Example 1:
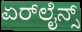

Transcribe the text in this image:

ಏರ್‌ಲೈನ್ಸ್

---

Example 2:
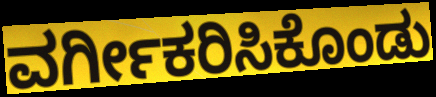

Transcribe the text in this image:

ವರ್ಗೀಕರಿಸಿಕೊಂಡು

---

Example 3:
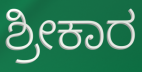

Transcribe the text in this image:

ಶ್ರೀಕಾರ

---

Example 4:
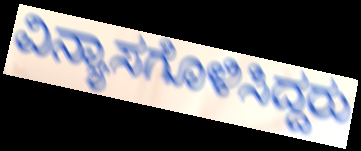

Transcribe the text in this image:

ವಿನ್ಯಾಸಗೊಳಿಸಿದ್ದರು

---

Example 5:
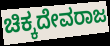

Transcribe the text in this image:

ಚಿಕ್ಕದೇವರಾಜ